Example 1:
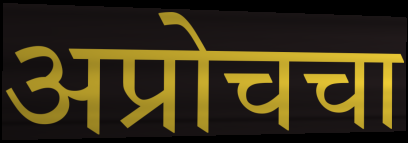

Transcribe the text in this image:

अप्रोचचा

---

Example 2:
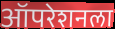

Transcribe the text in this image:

ऑपरेशनला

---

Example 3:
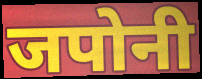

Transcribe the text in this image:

जपोनी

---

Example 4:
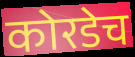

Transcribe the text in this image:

कोरडेच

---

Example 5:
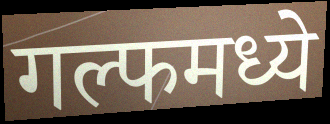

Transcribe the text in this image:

गल्फमध्ये